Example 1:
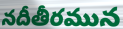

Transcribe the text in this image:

నదీతీరమున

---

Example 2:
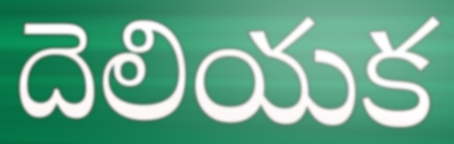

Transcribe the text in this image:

దెలియక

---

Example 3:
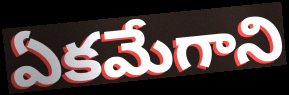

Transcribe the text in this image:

ఏకమేగాని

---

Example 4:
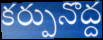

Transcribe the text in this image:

కర్పునొద్ద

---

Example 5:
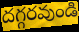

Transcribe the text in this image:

దగ్గరవుండి